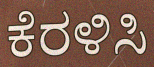
ಕೆರಳಿಸಿ